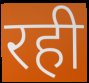
रही